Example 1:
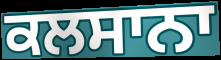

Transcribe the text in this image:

ਕਲਸਾਨਾ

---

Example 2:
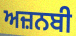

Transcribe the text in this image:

ਅਜ਼ਨਬੀ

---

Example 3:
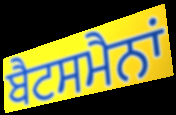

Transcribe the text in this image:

ਬੈਟਸਮੈਨਾਂ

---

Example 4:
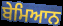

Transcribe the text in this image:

ਬੇਮਿਆਨ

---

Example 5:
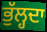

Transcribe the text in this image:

ਭੁੱਲ੍ਹਦਾ